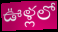
ఊళ్లలో